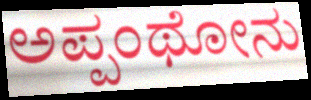
ಅಪ್ಪಂಥೋನು